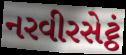
નરવીરસેટ્ઠં